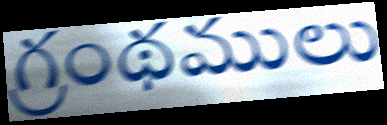
గ్రంథములు